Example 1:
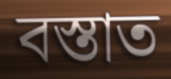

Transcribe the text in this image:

বস্তাত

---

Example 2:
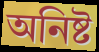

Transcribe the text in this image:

অনিষ্ট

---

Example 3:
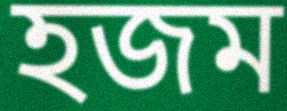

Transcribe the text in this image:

হজম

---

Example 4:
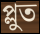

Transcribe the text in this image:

প্লুত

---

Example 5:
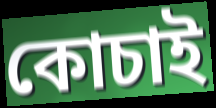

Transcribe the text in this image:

কোচাই